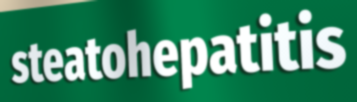
steatohepatitis